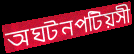
অঘটনপটিয়সী